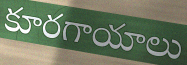
కూరగాయాలు